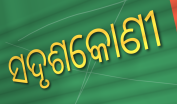
ସଦୃଶକୋଣୀ